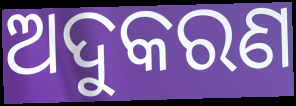
ଅଦୁକରଣ